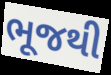
ભૂજથી